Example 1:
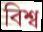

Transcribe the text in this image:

বিশ্ব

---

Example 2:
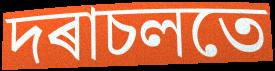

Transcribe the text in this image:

দৰাচলতে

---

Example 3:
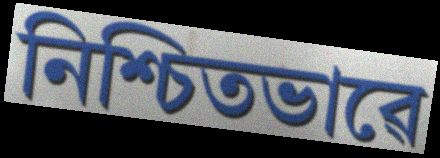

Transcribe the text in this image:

নিশ্চিতভাৱে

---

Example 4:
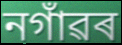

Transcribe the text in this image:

নগাঁৱৰ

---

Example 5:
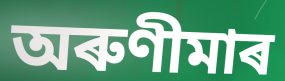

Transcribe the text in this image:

অৰুণীমাৰ